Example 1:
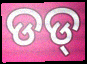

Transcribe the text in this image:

ଡଡ୍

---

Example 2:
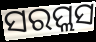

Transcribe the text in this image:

ସରପ୍ଲସ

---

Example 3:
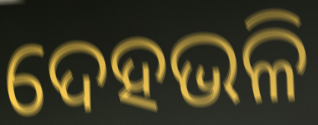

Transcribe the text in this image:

ଦେହଭଳି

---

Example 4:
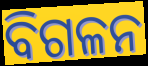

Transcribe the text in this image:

ବିଗଳନ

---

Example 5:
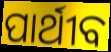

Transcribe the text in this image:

ପାର୍ଥୀବ